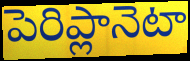
పెరిప్లానెటా